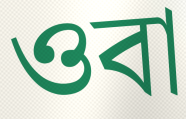
ওবা